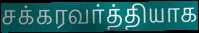
சக்கரவர்த்தியாக